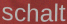
schalt